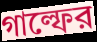
গাল্ফের